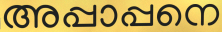
അപ്പാപ്പനെ